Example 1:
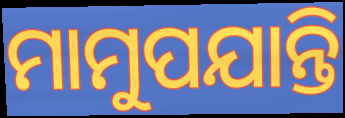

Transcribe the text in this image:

ମାମୁପଯାନ୍ତି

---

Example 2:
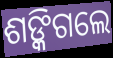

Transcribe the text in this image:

ଶଙ୍କିଗଲେ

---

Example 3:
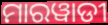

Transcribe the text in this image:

ମାରୱାଡୀ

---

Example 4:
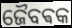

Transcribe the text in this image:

ଜୈବଵକ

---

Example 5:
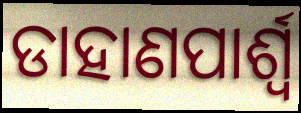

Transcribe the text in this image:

ଡାହାଣପାର୍ଶ୍ୱ